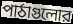
পাঠাগুলোর